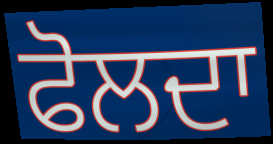
ਫੋਲਦਾ